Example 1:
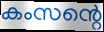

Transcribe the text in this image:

കംസന്റെ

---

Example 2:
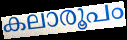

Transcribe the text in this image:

കലാരൂപം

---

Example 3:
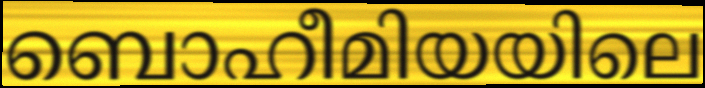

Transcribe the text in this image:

ബൊഹീമിയയിലെ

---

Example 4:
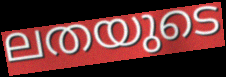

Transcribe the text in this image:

ലതയുടെ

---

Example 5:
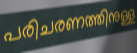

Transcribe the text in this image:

പരിചരണത്തിനുള്ള